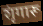
शृंगारू